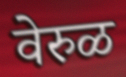
वेरुळ